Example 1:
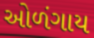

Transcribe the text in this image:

ઓળંગાય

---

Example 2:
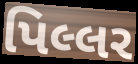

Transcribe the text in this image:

પિલ્લર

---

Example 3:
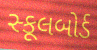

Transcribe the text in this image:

સ્કૂલબોર્ડ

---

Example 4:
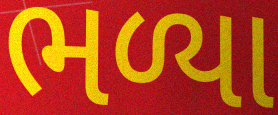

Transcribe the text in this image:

ભળ્યા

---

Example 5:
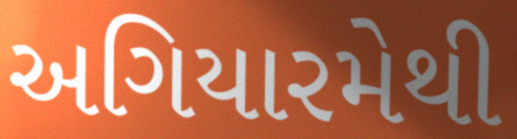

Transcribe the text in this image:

અગિયારમેથી